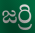
జర్రి